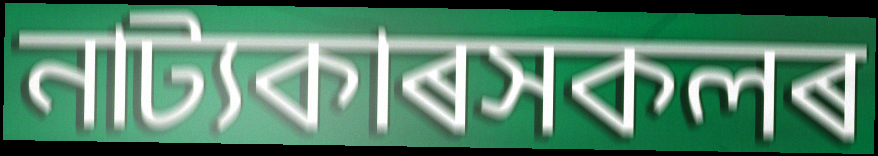
নাট্যকাৰসকলৰ